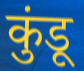
कुंडू